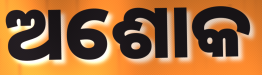
ଅଶୋକ